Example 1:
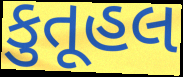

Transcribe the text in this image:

કુતૂહલ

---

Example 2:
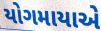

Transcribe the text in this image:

યોગમાયાએ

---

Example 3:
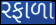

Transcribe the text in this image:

રફાળા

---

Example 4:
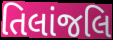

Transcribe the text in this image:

તિલાંજલિ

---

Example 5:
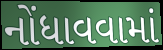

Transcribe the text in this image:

નોંધાવવામાં